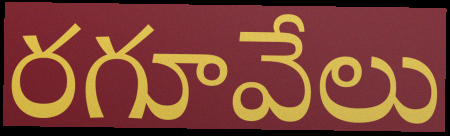
రగూవేలు